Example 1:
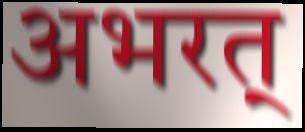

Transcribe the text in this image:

अभरत्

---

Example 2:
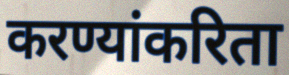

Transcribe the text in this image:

करण्यांकरिता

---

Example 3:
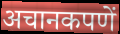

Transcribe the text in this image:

अचानकपणें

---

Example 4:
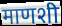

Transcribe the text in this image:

माणशी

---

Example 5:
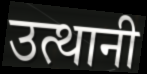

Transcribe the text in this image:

उत्थानी